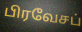
பிரவேசப்